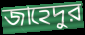
জাহেদুর